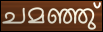
ചമഞ്ഞു്